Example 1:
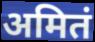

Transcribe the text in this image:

अमितं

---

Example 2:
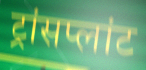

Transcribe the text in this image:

ट्रांसप्लांट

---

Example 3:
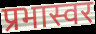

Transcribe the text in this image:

प्रभास्वर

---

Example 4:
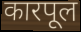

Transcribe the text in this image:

कारपूल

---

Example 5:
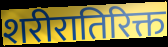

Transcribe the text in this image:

शरीरातिरिक्त